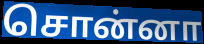
சொன்னா